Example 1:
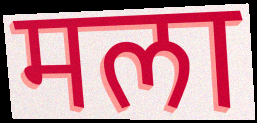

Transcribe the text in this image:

मला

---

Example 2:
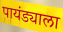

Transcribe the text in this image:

पायंड्याला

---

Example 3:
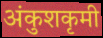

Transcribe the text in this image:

अंकुशकृमी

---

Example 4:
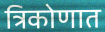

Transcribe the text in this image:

त्रिकोणात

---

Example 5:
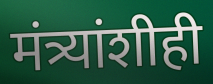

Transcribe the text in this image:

मंत्र्यांशीही